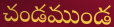
చండముండ